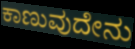
ಕಾಣುವುದೇನು